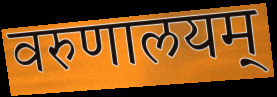
वरुणालयम्